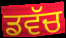
ਡਵੱਚ